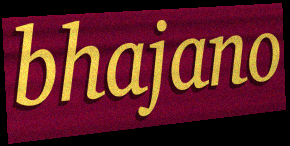
bhajano